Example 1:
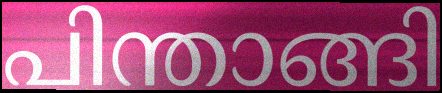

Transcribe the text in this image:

പിന്താങ്ങി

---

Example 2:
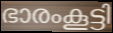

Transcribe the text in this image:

ഭാരംകൂട്ടി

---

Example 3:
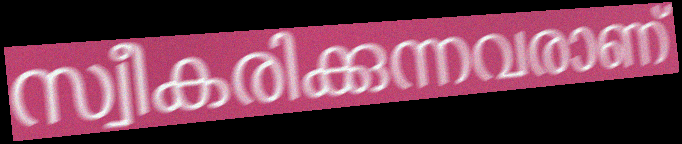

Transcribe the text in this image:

സ്വീകരിക്കുന്നവരാണ്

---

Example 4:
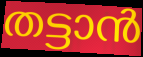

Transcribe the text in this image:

തട്ടാൻ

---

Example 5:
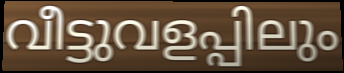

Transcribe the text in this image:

വീട്ടുവളപ്പിലും